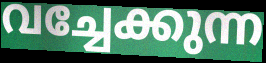
വച്ചേക്കുന്ന